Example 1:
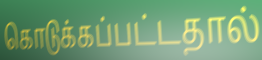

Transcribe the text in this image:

கொடுக்கப்பட்டதால்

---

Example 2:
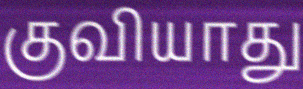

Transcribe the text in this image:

குவியாது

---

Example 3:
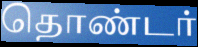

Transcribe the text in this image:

தொண்டர்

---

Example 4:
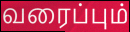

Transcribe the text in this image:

வரைப்பும்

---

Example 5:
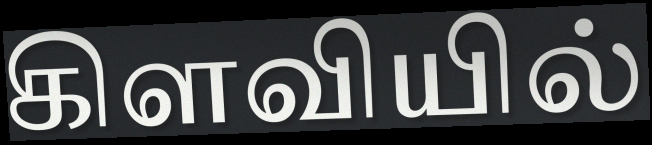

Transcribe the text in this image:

கிளவியில்